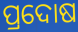
ପ୍ରଦୋଷ